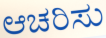
ಆಚರಿಸು